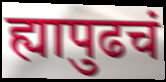
ह्यापुढचं